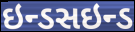
ઇન્ડસઇન્ડ